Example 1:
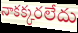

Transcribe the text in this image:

నాకక్కరలేదు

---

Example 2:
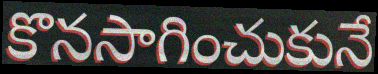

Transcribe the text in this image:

కొనసాగించుకునే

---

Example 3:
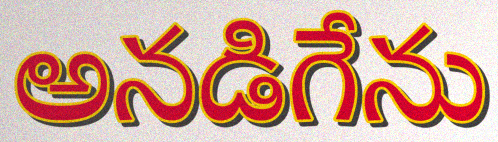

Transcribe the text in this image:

అనడిగేను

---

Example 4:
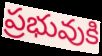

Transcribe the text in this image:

ప్రభువుకి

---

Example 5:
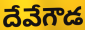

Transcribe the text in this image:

దేవేగౌడ